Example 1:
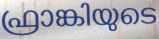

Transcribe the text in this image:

ഫ്രാങ്കിയുടെ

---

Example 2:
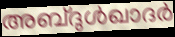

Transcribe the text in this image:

അബ്ദുൾഖാദർ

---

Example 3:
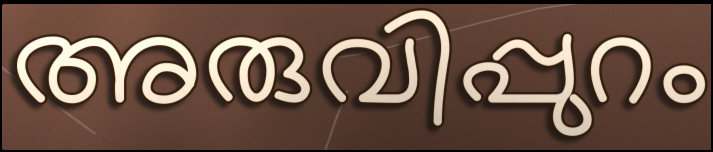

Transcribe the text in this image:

അരുവിപ്പുറം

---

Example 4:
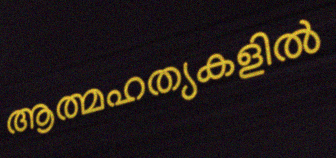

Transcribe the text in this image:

ആത്മഹത്യകളിൽ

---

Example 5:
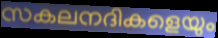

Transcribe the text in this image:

സകലനദികളെയും